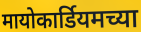
मायोकार्डियमच्या